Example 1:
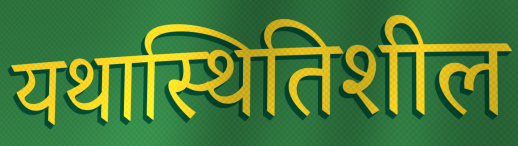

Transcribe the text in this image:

यथास्थितिशील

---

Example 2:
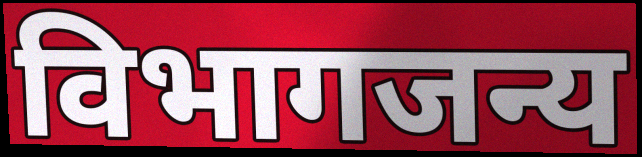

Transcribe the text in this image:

विभागजन्य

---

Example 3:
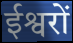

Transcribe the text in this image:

ईश्वरों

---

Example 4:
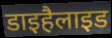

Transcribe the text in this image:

डाइहैलाइड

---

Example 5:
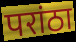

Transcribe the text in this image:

परांठा